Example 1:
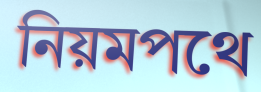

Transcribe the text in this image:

নিয়মপথে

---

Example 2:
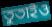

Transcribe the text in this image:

তুতাইও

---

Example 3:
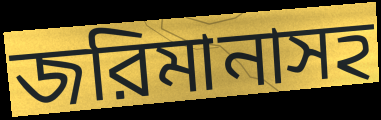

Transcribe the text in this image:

জরিমানাসহ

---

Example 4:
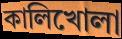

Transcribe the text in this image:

কালিখোলা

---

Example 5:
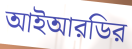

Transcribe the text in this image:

আইআরডির